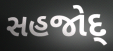
સહજોદ્